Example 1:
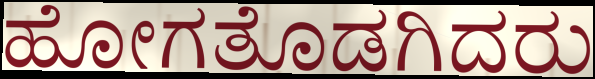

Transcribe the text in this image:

ಹೋಗತೊಡಗಿದರು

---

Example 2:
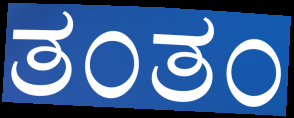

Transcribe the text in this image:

ತಂತಂ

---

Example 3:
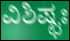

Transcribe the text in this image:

ವಿಶಿಷ್ಟಃ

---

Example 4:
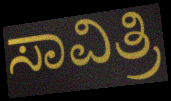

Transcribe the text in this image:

ಸಾವಿತ್ರಿ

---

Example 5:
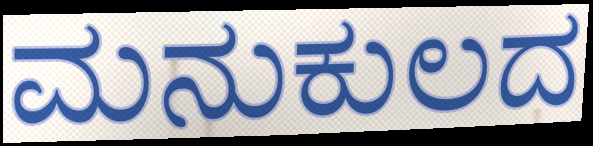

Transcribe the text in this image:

ಮನುಕುಲದ